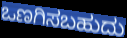
ಒಣಗಿಸಬಹುದು